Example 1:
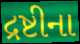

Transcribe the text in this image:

દ્રષ્ટીના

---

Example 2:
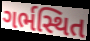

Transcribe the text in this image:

ગર્ભસ્થિત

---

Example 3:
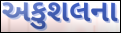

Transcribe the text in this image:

અકુશલના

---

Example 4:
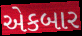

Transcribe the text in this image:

એકબાર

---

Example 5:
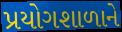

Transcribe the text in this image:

પ્રયોગશાળાને